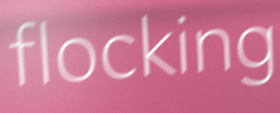
flocking